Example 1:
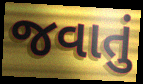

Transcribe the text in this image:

જવાતું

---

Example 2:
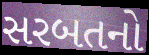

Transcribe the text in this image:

સરબતનો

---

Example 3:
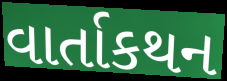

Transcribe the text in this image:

વાર્તાકથન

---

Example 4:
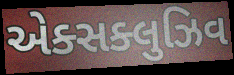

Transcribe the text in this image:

એક્સક્લુઝિવ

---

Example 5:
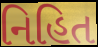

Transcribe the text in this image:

નિહિત